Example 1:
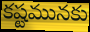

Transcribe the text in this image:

కష్టమునకు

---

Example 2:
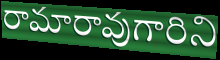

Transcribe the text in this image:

రామారావుగారిని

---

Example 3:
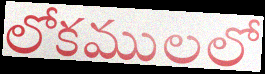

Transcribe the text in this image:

లోకములలో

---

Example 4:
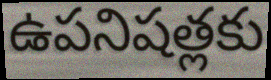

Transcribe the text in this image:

ఉపనిషత్లకు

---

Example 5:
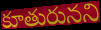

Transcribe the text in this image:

కూతురునని